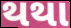
થથા